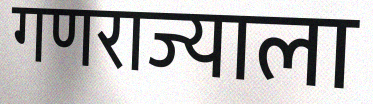
गणराज्याला